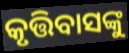
କୃତ୍ତିବାସଙ୍କୁ